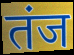
तंज